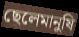
ছেলেমানুষি